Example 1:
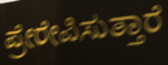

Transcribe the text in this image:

ಪ್ರೇರೇಪಿಸುತ್ತಾರೆ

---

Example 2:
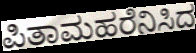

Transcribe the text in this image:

ಪಿತಾಮಹರೆನಿಸಿದ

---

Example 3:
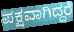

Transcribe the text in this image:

ಪಕ್ಷವಾಗಿದ್ದರೆ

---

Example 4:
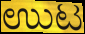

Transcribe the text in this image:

ಉುಟ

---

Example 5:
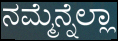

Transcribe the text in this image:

ನಮ್ಮೆನ್ನೆಲ್ಲಾ